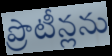
ప్రొటీన్లను